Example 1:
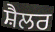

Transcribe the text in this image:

ਸ਼ੈਲਰ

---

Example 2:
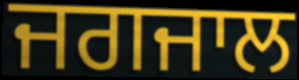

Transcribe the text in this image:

ਜਗਜਾਲ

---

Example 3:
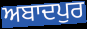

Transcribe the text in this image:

ਅਬਾਦਪੁਰ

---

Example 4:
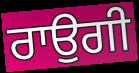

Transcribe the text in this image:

ਰਾਉਗੀ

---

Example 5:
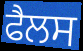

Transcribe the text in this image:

ਫੈਲਸ